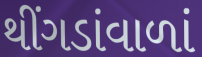
થીંગડાંવાળાં